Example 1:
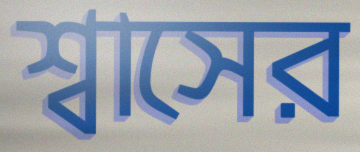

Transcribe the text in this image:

শ্বাসের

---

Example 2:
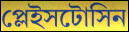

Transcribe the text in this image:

প্লেইসটোসিন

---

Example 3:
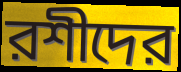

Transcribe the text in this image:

রশীদের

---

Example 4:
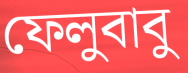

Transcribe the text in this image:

ফেলুবাবু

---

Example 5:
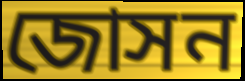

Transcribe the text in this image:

জোসন